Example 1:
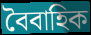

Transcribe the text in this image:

বৈবাহিক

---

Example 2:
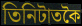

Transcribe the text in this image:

তিনিটাতকৈ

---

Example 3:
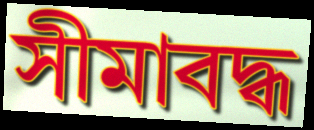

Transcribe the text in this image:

সীমাবদ্ধ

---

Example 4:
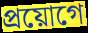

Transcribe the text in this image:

প্ৰয়োগে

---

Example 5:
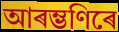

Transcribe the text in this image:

আৰম্ভণিৰে